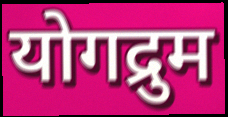
योगद्रुम